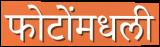
फोटोंमधली